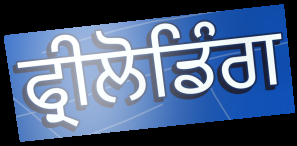
ਫ੍ਰੀਲੋਡਿੰਗ